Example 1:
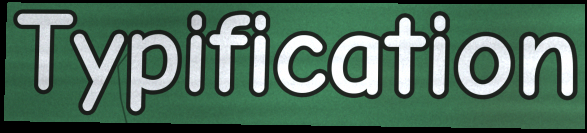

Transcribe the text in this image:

Typification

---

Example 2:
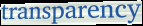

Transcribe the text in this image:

transparency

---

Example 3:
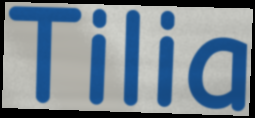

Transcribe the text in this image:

Tilia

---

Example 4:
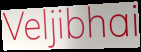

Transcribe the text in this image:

Veljibhai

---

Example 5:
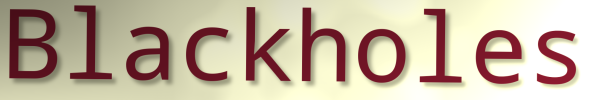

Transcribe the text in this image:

Blackholes